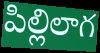
పిల్లిలాగ